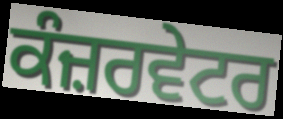
ਕੰਜ਼ਰਵੇਟਰ